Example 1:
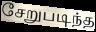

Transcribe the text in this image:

சேறுபடிந்த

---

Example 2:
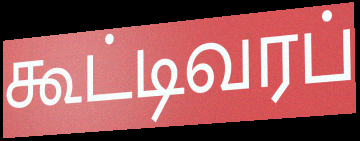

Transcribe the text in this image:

கூட்டிவரப்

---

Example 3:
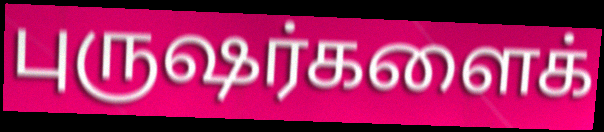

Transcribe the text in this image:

புருஷர்களைக்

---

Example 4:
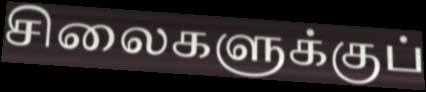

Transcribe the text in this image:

சிலைகளுக்குப்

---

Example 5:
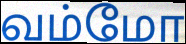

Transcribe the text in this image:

வம்மோ